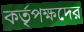
কর্তৃপক্ষদের